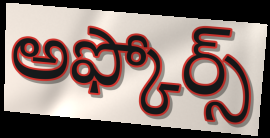
అఫ్కోర్స్